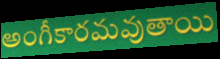
అంగీకారమవుతాయి